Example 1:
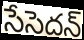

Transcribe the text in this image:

సేసెదన్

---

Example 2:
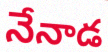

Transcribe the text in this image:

నేనాడ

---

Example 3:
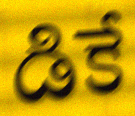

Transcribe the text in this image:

డికే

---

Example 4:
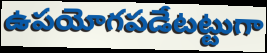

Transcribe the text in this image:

ఉపయోగపడేటట్టుగా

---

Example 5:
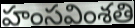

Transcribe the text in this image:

హంసవింశతి